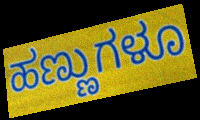
ಹಣ್ಣುಗಳೂ